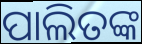
ପାଲିତଙ୍କ